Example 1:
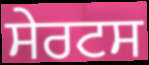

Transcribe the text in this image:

ਸੇਰਟਸ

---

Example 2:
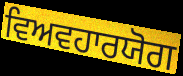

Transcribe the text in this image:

ਵਿਅਵਹਾਰਯੋਗ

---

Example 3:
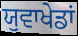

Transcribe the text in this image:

ਯੁਵਾਖੇਡਾਂ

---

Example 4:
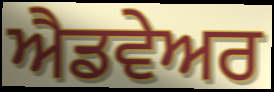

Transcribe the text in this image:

ਐਡਵੇਅਰ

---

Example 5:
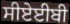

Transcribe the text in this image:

ਸੀਏਈਬੀ